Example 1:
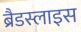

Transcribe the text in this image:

ब्रैडस्लाइस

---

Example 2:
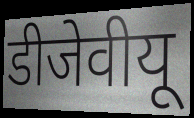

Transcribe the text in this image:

डीजेवीयू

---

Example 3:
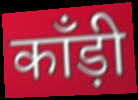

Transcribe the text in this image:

काँड़ी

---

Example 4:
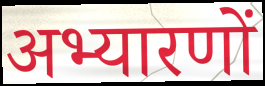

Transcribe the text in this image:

अभ्यारणों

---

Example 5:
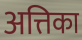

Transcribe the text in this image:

अत्तिका